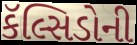
કૅલ્સિડોની